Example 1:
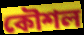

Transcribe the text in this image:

কৌশল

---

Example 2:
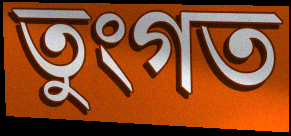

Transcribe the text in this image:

তুংগত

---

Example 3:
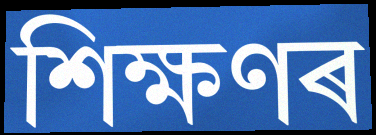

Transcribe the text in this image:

শিক্ষণৰ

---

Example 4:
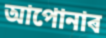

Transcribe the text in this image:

আপোনাৰ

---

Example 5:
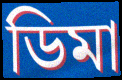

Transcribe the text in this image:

ডিমা